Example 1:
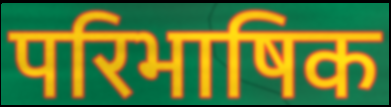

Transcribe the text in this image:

परिभाषिक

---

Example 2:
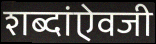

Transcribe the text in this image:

शब्दांऐवजी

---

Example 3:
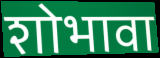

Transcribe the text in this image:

शोभावा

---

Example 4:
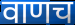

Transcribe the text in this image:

वाणच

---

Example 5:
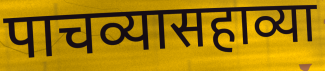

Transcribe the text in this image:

पाचव्यासहाव्या